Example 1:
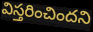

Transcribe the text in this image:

విస్తరించిందని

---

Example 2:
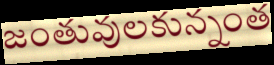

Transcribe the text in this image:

జంతువులకున్నంత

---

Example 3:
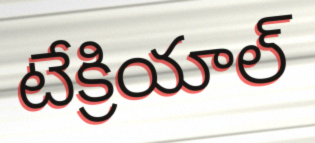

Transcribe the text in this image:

టేక్రియాల్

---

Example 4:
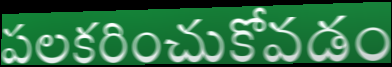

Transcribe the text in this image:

పలకరించుకోవడం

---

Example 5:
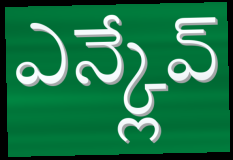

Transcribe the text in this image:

ఎన్క్లేవ్